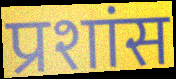
प्रशांस